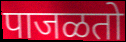
पाजळतो